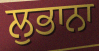
ਲੁਭਾਨਾ